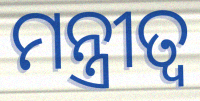
ମନ୍ତ୍ରୀତ୍ୱ